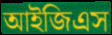
আইজিএস